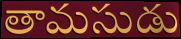
తామసుడు